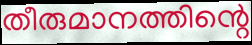
തീരുമാനത്തിന്റെ